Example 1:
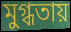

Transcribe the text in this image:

মুগ্ধতায়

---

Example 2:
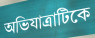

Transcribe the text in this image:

অভিযাত্রাটিকে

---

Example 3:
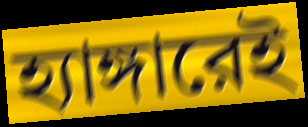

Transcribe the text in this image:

হ্যাঙ্গারেই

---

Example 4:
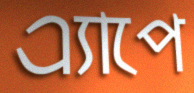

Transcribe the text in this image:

এ্যাপে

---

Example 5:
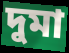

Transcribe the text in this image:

দুমা